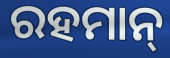
ରହମାନ୍